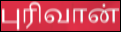
புரிவான்